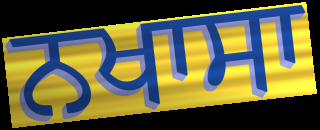
ਨਖਾਸਾ